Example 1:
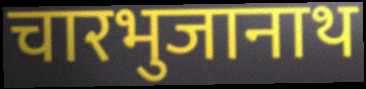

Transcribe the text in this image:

चारभुजानाथ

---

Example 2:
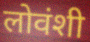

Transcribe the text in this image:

लोवंशी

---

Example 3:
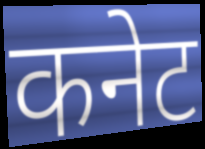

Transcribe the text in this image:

कनेट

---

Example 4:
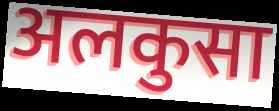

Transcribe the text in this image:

अलकुसा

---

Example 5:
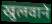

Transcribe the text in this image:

खुलवाने